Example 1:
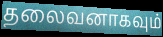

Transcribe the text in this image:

தலைவனாகவும்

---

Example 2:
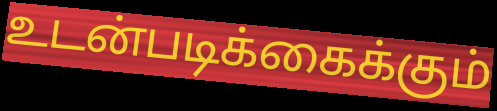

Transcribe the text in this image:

உடன்படிக்கைக்கும்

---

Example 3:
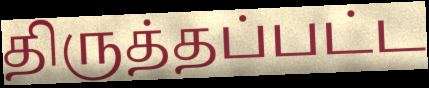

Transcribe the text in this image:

திருத்தப்பட்ட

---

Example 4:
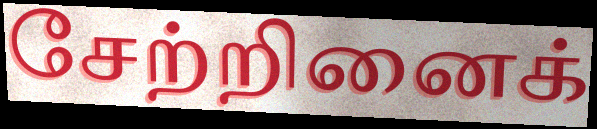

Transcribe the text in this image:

சேற்றினைக்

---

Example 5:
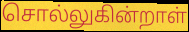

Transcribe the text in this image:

சொல்லுகின்றாள்